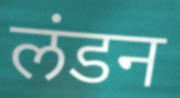
लंडन